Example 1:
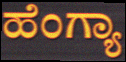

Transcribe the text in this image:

ಹೆಂಗ್ಯಾ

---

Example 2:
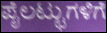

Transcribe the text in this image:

ಪೈಲಟ್ಟುಗಳಿಗೆ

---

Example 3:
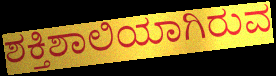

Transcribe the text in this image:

ಶಕ್ತಿಶಾಲಿಯಾಗಿರುವ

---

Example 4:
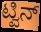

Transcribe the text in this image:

ಟ್ವಿನ್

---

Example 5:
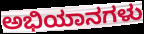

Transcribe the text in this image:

ಅಭಿಯಾನಗಳು